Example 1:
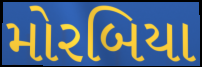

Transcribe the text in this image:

મોરબિયા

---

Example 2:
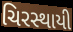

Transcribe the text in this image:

ચિરસ્થાયી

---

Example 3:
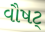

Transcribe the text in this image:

વૌષટ્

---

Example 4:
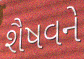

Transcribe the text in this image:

શૈષવને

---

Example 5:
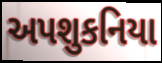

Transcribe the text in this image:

અપશુકનિયા